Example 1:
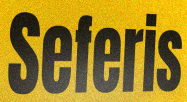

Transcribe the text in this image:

Seferis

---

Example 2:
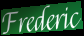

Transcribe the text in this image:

Frederic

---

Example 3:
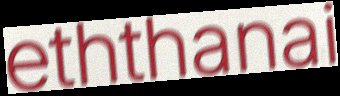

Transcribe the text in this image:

eththanai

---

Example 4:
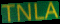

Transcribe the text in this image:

TNLA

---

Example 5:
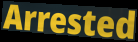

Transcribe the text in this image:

Arrested